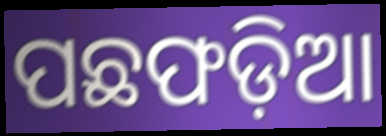
ପଛଫଡ଼ିଆ